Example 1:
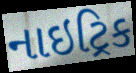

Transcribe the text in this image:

નાઇટ્રિક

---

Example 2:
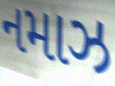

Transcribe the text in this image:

નમાઝ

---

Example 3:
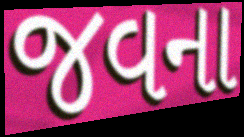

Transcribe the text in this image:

જવના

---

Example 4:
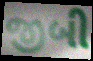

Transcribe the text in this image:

જીબી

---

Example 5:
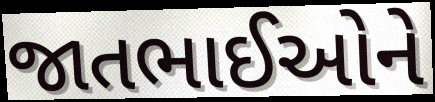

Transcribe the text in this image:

જાતભાઈઓને